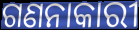
ଗଣନାକାରୀ